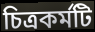
চিত্রকর্মটি